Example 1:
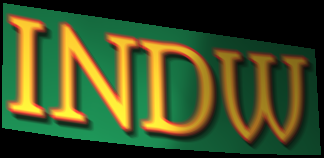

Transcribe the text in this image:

INDW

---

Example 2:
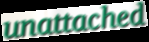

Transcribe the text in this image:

unattached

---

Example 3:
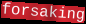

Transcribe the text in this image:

forsaking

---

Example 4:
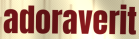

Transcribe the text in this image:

adoraverit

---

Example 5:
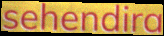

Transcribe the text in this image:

sehendira